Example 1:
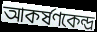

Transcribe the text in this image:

আকর্ষণকেন্দ্র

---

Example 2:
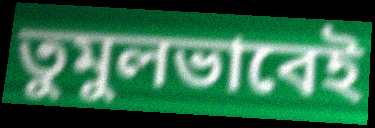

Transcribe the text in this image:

তুমুলভাবেই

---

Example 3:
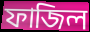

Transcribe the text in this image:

ফাজিল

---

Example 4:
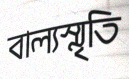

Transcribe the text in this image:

বাল্যস্মৃতি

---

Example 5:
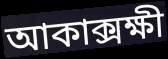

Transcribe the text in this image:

আকাক্সক্ষী